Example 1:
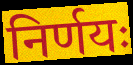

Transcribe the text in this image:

निर्णयः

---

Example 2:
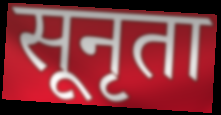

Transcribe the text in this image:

सूनृता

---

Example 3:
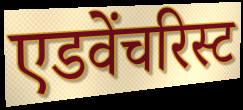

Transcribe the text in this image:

एडवेंचरिस्ट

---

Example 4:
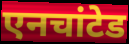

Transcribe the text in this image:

एनचांटेड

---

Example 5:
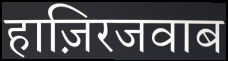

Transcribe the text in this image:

हाज़िरजवाब